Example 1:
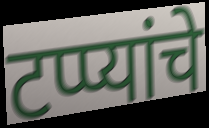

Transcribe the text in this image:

टप्प्यांचे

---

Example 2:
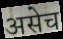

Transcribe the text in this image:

असेच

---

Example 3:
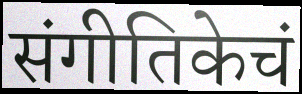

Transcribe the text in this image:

संगीतिकेचं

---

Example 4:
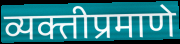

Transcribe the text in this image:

व्यक्तीप्रमाणे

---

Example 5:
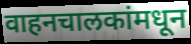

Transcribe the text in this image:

वाहनचालकांमधून